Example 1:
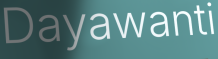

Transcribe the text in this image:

Dayawanti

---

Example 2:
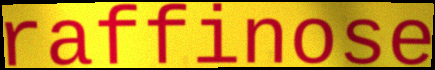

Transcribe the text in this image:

raffinose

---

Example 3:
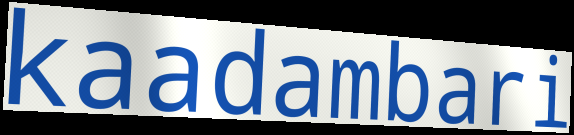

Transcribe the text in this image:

kaadambari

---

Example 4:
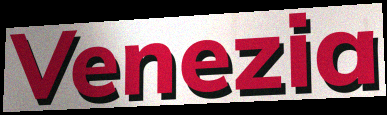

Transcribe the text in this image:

Venezia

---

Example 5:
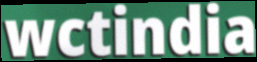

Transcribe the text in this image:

wctindia